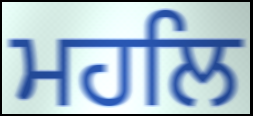
ਮਹਲਿ